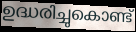
ഉദ്ധരിച്ചുകൊണ്ട്